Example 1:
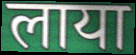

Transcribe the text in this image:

लाया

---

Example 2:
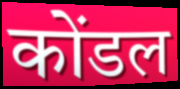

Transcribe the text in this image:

कोंडल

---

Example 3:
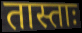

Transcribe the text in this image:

तास्ताः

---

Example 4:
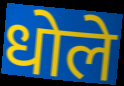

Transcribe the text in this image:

धोले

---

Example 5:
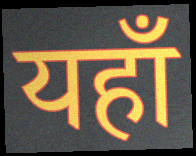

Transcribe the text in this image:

यहाँ